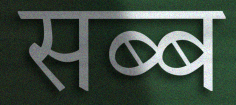
सब्ब